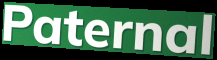
Paternal